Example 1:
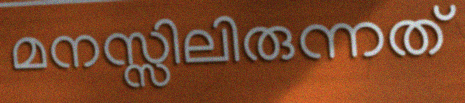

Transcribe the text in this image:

മനസ്സിലിരുന്നത്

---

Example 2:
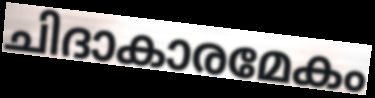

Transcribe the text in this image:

ചിദാകാരമേകം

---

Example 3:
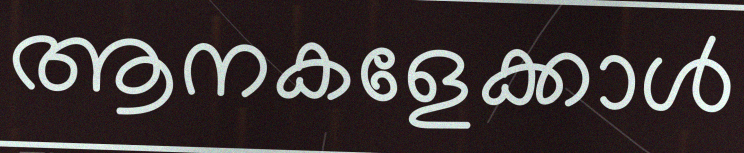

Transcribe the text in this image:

ആനകളേക്കാൾ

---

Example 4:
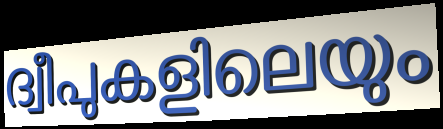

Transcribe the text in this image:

ദ്വീപുകളിലെയും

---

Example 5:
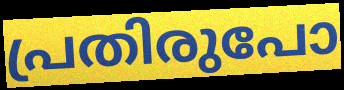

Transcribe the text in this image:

പ്രതിരുപോ